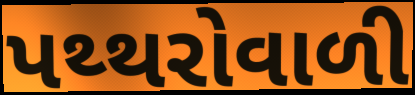
પથ્થરોવાળી